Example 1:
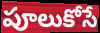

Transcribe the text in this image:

పూలుకోసే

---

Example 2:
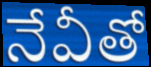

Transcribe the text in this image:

నేవీతో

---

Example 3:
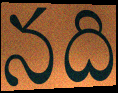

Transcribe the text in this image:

నది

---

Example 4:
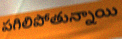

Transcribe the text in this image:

పగిలిపోతున్నాయి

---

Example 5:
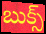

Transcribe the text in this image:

బుక్స్